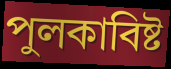
পুলকাবিষ্ট